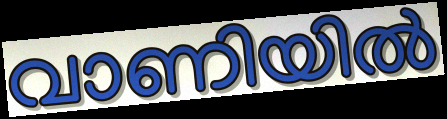
വാണിയിൽ